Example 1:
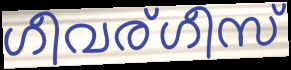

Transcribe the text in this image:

ഗീവര്ഗീസ്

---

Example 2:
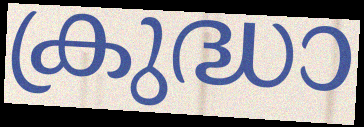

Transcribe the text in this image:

ക്രുദ്ധാ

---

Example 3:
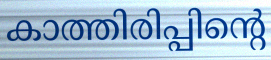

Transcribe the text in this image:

കാത്തിരിപ്പിന്റെ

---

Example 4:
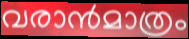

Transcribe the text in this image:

വരാൻമാത്രം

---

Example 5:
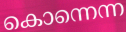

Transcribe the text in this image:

കൊന്നെന്ന